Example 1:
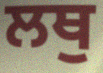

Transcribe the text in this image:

ਲਥੁ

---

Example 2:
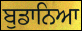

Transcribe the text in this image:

ਬੁਡਾਨਿਆ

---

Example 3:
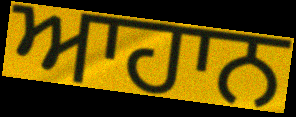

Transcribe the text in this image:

ਆਹਾਨ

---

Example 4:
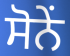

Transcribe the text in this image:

ਸੋਨੇਂ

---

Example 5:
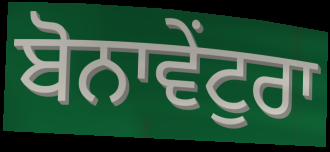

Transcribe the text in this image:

ਬੋਨਾਵੇਂਟੁਰਾ